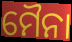
ମୈନା